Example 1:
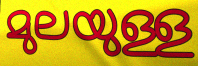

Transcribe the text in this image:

മുലയുള്ള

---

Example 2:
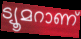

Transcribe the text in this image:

ട്യൂമറാണ്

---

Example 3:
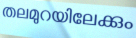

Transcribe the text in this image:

തലമുറയിലേക്കും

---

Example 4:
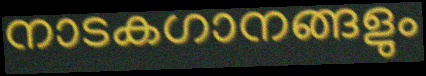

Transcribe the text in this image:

നാടകഗാനങ്ങളും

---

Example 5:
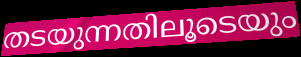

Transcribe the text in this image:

തടയുന്നതിലൂടെയും